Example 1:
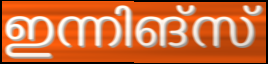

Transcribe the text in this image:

ഇന്നിങ്സ്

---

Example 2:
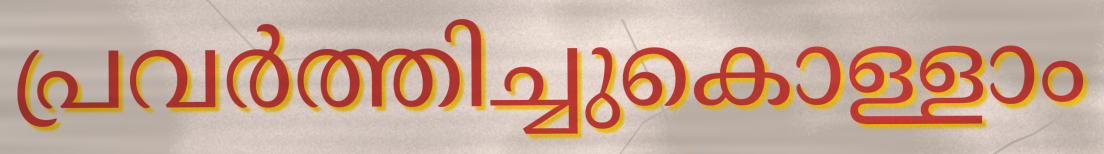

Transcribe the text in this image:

പ്രവർത്തിച്ചുകൊള്ളാം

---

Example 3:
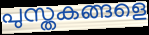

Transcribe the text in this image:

പുസ്തകങ്ങളെ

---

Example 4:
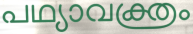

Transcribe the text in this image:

പഥ്യാവക്ത്രം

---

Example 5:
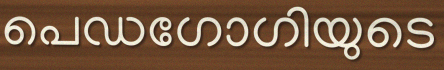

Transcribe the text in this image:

പെഡഗോഗിയുടെ